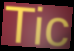
Tic